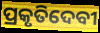
ପ୍ରକୃତିଦେବୀ